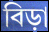
বিড়া